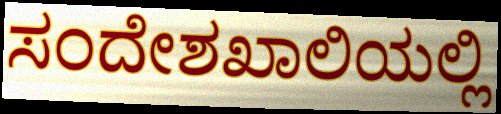
ಸಂದೇಶಖಾಲಿಯಲ್ಲಿ